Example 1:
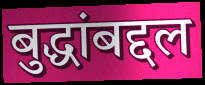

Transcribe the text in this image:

बुद्धांबद्दल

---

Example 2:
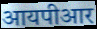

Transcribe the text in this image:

आयपीआर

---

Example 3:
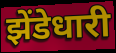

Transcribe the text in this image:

झेंडेधारी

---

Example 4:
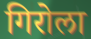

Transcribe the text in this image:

गिरोला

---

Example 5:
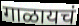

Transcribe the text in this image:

गाळायचं